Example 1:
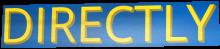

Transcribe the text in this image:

DIRECTLY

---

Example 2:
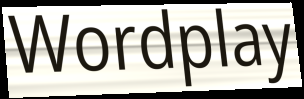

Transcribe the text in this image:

Wordplay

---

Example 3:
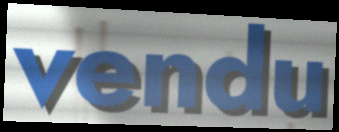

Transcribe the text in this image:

vendu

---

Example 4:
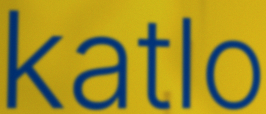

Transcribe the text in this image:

katlo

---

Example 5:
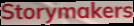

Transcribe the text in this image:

Storymakers